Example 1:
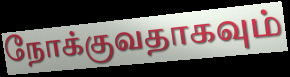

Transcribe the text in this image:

நோக்குவதாகவும்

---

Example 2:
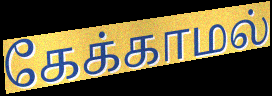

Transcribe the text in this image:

கேக்காமல்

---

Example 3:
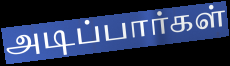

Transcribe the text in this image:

அடிப்பார்கள்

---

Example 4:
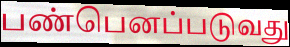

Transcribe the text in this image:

பண்பெனப்படுவது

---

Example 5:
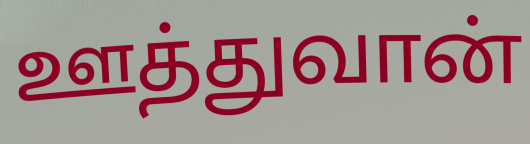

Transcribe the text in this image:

ஊத்துவான்